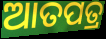
ଆତପତ୍ର